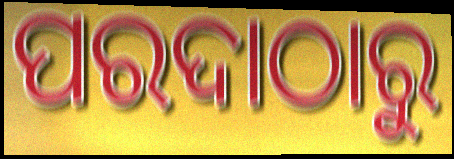
ପରଦାଠାରୁ